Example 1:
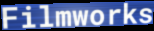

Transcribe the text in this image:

Filmworks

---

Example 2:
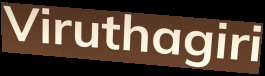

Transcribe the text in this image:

Viruthagiri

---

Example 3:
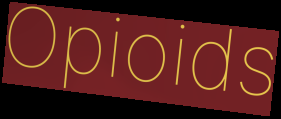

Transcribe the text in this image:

Opioids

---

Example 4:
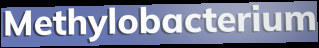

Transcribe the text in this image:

Methylobacterium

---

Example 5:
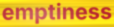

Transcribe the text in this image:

emptiness